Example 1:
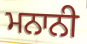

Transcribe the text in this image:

ਮਨਾਨੀ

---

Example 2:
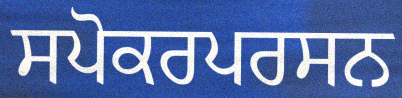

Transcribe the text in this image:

ਸਪੋਕਰਪਰਸਨ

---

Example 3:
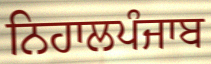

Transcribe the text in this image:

ਨਿਹਾਲਪੰਜਾਬ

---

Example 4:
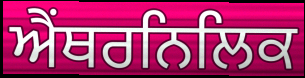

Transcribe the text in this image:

ਐਂਥਰਨਿਲਿਕ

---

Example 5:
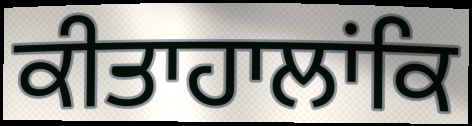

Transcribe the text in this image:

ਕੀਤਾਹਾਲਾਂਕਿ